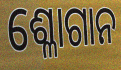
ଶ୍ଳୋଗାନ